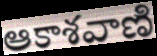
ఆకాశవాణి